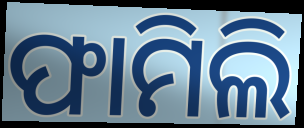
ଫାମିଲି